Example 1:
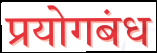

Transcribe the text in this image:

प्रयोगबंध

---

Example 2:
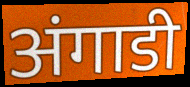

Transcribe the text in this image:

अंगाडी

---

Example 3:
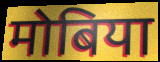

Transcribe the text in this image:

मोबिया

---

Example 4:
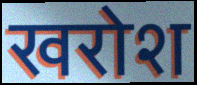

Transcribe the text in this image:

खरोश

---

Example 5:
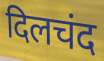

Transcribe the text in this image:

दिलचंद